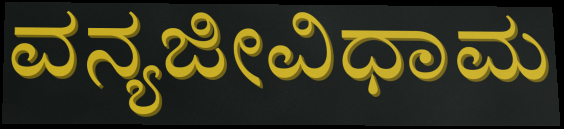
ವನ್ಯಜೀವಿಧಾಮ